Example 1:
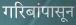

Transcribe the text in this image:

गरिबांपासून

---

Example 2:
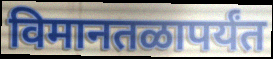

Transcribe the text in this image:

विमानतळापर्यंत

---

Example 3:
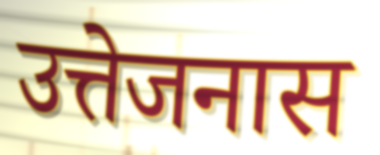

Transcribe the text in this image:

उत्तेजनास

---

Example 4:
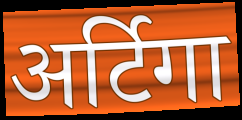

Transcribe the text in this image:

अर्टिगा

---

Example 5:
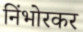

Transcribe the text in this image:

निंभोरकर